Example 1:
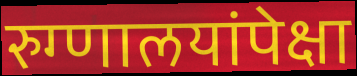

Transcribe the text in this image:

रुग्णालयांपेक्षा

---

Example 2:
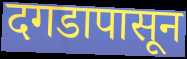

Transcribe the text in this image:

दगडापासून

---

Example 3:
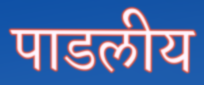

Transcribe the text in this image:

पाडलीय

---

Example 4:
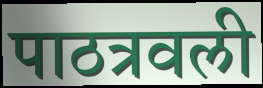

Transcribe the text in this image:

पाठत्रवली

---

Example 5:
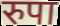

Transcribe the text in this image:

रुपा